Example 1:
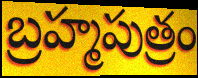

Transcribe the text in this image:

బ్రహ్మపుత్రం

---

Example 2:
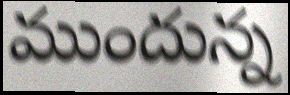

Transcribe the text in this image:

ముందున్న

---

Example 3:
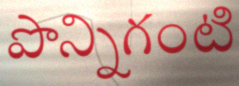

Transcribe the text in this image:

పొన్నిగంటి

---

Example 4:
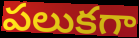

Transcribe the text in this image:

పలుకగా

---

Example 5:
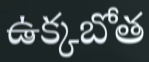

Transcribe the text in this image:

ఉక్కబోత